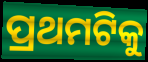
ପ୍ରଥମଟିକୁ